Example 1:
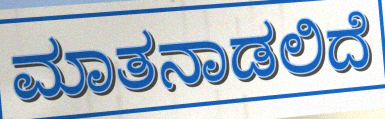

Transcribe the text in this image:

ಮಾತನಾಡಲಿದೆ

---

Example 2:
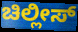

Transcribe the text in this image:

ಚಿಲ್ಲೀಸ್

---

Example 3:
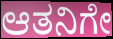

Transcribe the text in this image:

ಆತನಿಗೇ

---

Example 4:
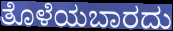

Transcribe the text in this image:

ತೊಳೆಯಬಾರದು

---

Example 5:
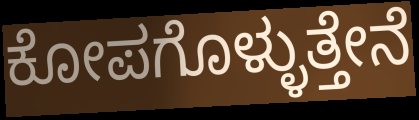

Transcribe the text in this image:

ಕೋಪಗೊಳ್ಳುತ್ತೇನೆ